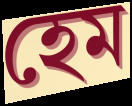
হেম